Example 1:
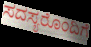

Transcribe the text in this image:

ಸದಸ್ಯರೊಂದಿಗೆ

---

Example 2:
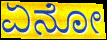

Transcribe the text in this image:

ಏನೋ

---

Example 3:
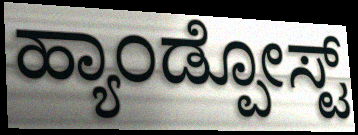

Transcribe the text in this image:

ಹ್ಯಾಂಡ್ಪೋಸ್ಟ್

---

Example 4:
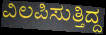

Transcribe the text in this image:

ವಿಲಪಿಸುತ್ತಿದ್ದ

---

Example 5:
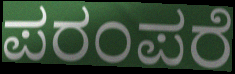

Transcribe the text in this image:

ಪರಂಪರೆ